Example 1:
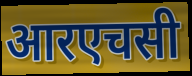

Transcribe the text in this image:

आरएचसी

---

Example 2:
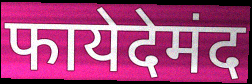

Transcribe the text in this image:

फायेदेमंद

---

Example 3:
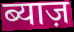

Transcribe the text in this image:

ब्याज़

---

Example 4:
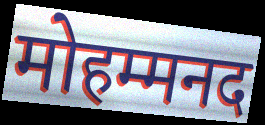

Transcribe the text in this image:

मोहम्मनद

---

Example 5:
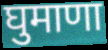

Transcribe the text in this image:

घुमाणा